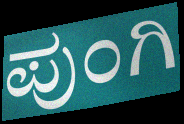
ಪುಂಗಿ